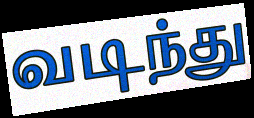
வடிந்து